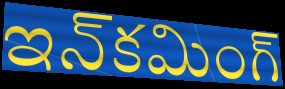
ఇన్‌కమింగ్